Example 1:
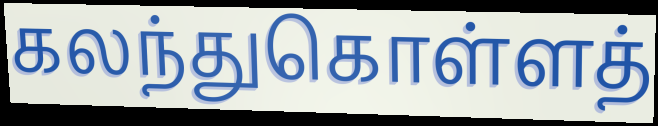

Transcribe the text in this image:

கலந்துகொள்ளத்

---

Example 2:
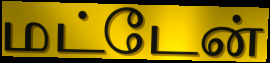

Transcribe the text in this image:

மட்டேன்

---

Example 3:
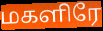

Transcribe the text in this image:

மகளிரே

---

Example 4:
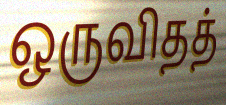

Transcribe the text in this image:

ஒருவிதத்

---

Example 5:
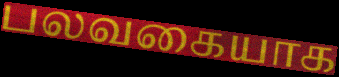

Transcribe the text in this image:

பலவகையாக